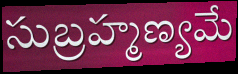
సుబ్రహ్మణ్యమే